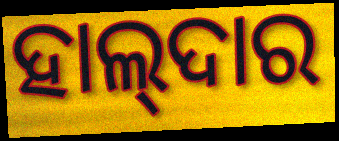
ହାଲ୍‌ଦାର